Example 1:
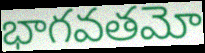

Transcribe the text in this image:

భాగవతమో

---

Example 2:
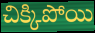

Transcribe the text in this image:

చిక్కిపోయి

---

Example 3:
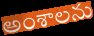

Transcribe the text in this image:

అంశాలను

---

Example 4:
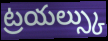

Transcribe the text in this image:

ట్రయల్స్కు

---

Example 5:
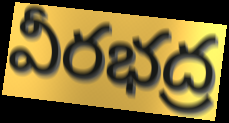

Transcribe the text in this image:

వీరభద్ర